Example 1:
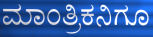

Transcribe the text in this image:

ಮಾಂತ್ರಿಕನಿಗೂ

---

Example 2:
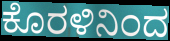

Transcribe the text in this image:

ಕೊರಳಿನಿಂದ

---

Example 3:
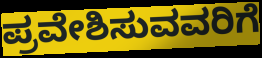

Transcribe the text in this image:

ಪ್ರವೇಶಿಸುವವರಿಗೆ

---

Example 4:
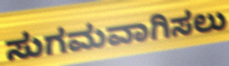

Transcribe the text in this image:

ಸುಗಮವಾಗಿಸಲು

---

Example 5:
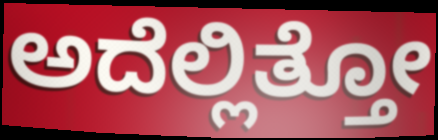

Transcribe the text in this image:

ಅದೆಲ್ಲಿತ್ತೋ